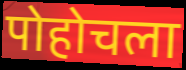
पोहोचला